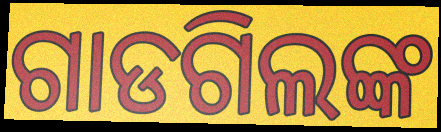
ଗାଡଗିଲଙ୍କ